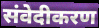
संवेदीकरण